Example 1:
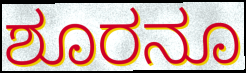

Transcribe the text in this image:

ಶೂರನೂ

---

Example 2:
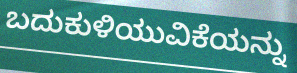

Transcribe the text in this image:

ಬದುಕುಳಿಯುವಿಕೆಯನ್ನು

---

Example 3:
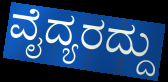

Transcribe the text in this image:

ವೈದ್ಯರದ್ದು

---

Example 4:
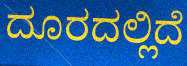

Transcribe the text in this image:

ದೂರದಲ್ಲಿದೆ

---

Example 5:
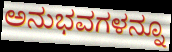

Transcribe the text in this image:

ಅನುಭವಗಳನ್ನೂ